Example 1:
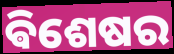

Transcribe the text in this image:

ଵିଶେଷର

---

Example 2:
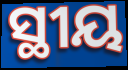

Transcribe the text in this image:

ସ୍ଥୀୟ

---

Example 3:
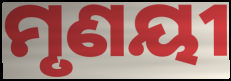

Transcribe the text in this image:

ମୃଣୟୀ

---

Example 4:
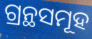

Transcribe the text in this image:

ଗ୍ରନ୍ଥସମୂହ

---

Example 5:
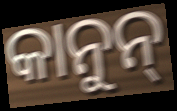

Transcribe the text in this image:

କାନୁନ୍